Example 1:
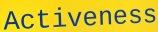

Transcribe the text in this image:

Activeness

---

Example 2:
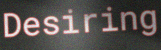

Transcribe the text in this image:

Desiring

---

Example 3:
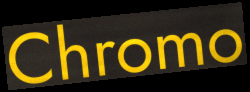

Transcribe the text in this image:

Chromo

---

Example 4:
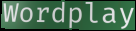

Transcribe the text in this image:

Wordplay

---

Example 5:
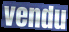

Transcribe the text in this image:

vendu